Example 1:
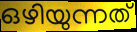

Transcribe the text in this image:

ഒഴിയുന്നത്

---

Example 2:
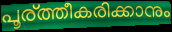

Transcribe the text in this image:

പൂര്ത്തീകരിക്കാനും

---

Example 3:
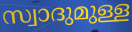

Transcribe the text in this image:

സ്വാദുമുള്ള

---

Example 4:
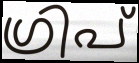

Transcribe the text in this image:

ഗ്രിപ്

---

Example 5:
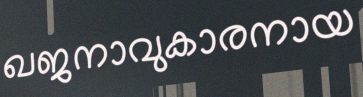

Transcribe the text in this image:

ഖജനാവുകാരനായ